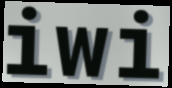
iwi